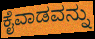
ಕೈವಾಡವನ್ನು